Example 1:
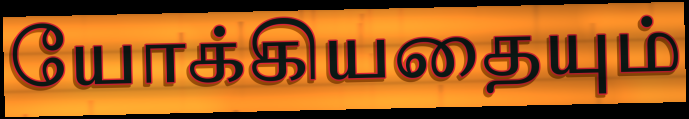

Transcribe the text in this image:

யோக்கியதையும்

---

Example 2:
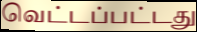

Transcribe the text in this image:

வெட்டப்பட்டது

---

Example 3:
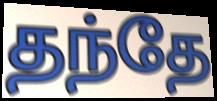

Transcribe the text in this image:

தந்தே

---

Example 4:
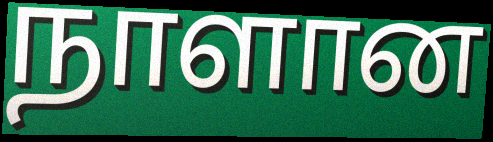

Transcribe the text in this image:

நாளான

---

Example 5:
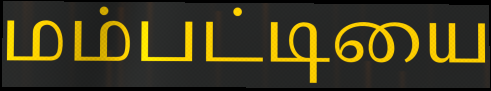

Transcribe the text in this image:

மம்பட்டியை